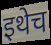
इथेच